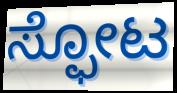
ಸ್ಫೋಟ